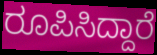
ರೂಪಿಸಿದ್ದಾರೆ